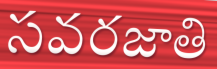
సవరజాతి